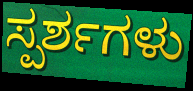
ಸ್ಪರ್ಶಗಳು